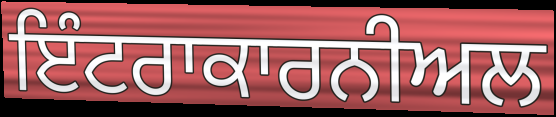
ਇੰਟਰਾਕਾਰਨੀਅਲ